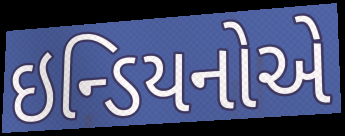
ઇન્ડિયનોએ